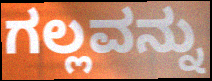
ಗಲ್ಲವನ್ನು